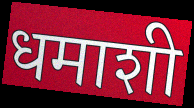
धमाशी